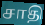
சாதி